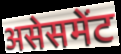
असेसमेंट